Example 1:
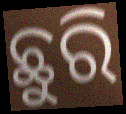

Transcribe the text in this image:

ଛୁରି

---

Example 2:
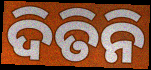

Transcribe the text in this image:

ଦିତିନି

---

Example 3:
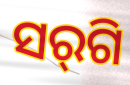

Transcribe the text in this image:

ସର୍‌ଗି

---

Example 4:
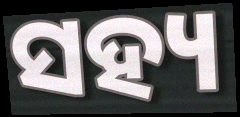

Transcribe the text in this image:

ସହ୍ୟ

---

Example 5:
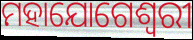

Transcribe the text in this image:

ମହାଯୋଗେଶ୍ୱରୀ